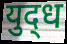
युद्‍ध